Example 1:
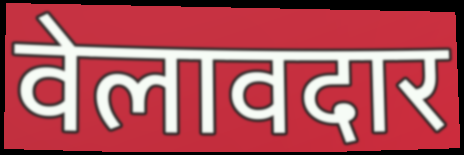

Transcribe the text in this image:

वेलावदार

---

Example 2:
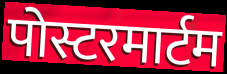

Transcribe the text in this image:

पोस्टरमार्टम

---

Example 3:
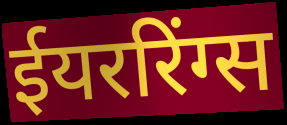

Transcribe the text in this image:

ईयररिंग्स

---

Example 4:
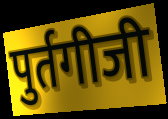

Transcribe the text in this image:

पुर्तगीजी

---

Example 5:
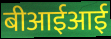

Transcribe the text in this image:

बीआईआई